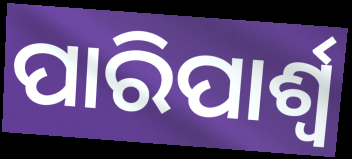
ପାରିପାର୍ଶ୍ୱ